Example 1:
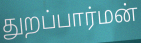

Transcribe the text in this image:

துறப்பார்மன்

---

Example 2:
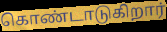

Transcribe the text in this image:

கொண்டாடுகிறார்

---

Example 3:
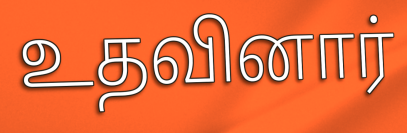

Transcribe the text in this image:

உதவினார்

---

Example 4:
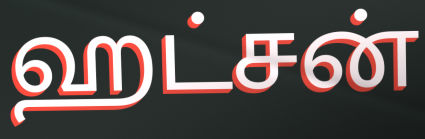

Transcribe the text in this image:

ஹட்சன்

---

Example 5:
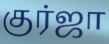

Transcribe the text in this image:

குர்ஜா